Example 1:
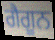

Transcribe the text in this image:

ਗੈਗੂਨ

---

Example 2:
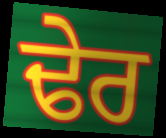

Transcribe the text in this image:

ਢੇਰ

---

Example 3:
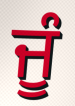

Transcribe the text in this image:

ਜੂੰ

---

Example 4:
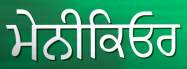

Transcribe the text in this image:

ਮੇਨੀਕਿਓਰ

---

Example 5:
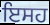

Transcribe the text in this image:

ਇਸਹ